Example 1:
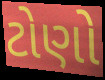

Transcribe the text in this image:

ટોણો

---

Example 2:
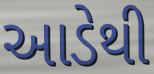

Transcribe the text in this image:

આડેથી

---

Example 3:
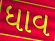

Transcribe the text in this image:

ધાવ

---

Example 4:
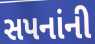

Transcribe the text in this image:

સપનાંની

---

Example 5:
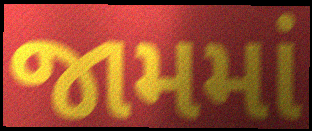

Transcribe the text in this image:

જામમાં